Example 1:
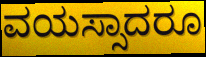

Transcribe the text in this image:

ವಯಸ್ಸಾದರೂ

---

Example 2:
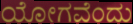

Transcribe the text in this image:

ಯೋಗವೆಂದು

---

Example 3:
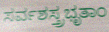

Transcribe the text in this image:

ಸರ್ವಶಸ್ತ್ರಭೃತಾಂ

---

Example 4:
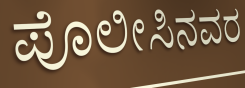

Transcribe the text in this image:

ಪೊಲೀಸಿನವರ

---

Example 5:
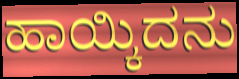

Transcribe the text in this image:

ಹಾಯ್ಕಿದನು